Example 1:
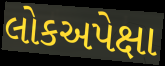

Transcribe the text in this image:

લોકઅપેક્ષા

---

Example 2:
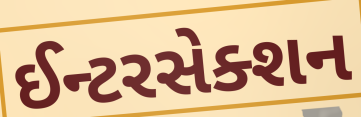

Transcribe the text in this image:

ઈન્ટરસેક્શન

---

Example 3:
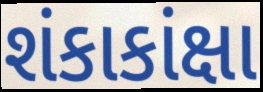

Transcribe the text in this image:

શંકાકાંક્ષા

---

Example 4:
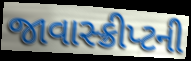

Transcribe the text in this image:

જાવાસ્ક્રીપ્ટની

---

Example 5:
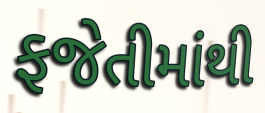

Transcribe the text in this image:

ફજેતીમાંથી